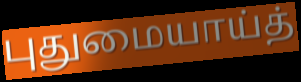
புதுமையாய்த்